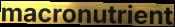
macronutrient